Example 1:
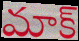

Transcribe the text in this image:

మాక్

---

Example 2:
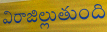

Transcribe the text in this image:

విరాజిల్లుతుంది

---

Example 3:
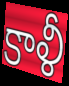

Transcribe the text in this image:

కాళీ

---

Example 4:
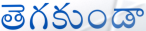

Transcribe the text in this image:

తెగకుండా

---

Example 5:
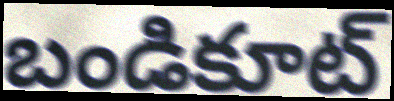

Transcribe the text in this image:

బండికూట్